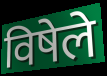
विषेले